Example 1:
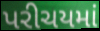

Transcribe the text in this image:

પરીચયમાં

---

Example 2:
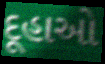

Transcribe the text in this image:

દૂહાઓ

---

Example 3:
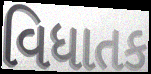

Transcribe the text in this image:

વિધાતક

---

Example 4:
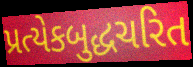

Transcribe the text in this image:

પ્રત્યેકબુદ્ધચરિત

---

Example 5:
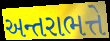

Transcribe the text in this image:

અન્તરાભત્તે